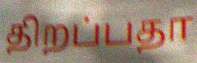
திறப்பதா